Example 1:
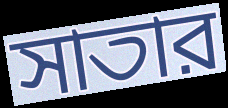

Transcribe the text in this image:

সাতার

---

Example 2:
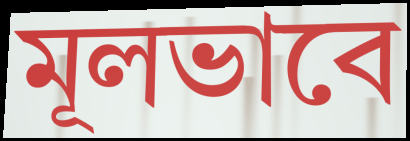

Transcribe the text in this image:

মূলভাবে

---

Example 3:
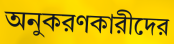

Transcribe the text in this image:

অনুকরণকারীদের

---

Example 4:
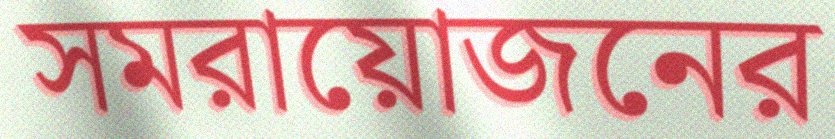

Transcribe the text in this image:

সমরায়োজনের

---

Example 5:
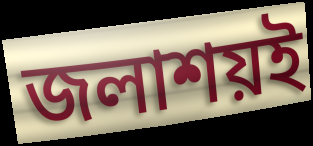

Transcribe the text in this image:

জলাশয়ই